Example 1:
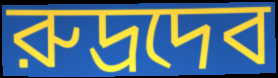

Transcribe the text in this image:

রুদ্রদেব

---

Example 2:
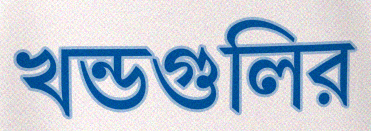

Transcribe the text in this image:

খন্ডগুলির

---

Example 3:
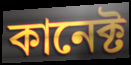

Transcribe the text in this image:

কানেক্ট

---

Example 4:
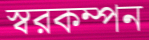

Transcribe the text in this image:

স্বরকম্পন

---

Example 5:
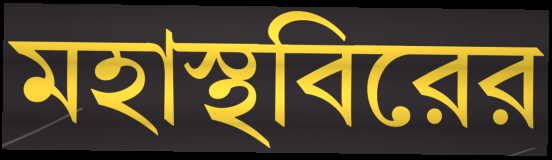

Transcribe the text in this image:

মহাস্থবিরের